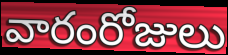
వారంరోజులు